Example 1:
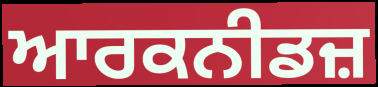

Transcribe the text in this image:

ਆਰਕਨੀਡਜ਼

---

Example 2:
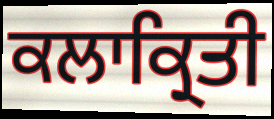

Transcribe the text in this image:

ਕਲਾਕ੍ਰਿਤੀ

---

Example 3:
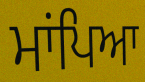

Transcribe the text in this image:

ਮਾਂਪਿਆ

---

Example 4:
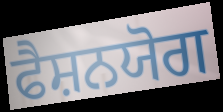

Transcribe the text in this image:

ਫੈਸ਼ਨਯੋਗ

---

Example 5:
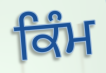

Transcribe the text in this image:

ਕਿੰਮ